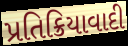
પ્રતિક્રિયાવાદી